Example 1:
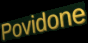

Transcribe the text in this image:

Povidone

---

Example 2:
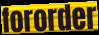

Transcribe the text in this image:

fororder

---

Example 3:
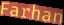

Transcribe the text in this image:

Farhan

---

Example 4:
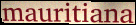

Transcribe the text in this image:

mauritiana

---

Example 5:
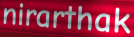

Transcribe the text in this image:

nirarthak